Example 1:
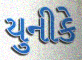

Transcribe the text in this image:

યુનીકે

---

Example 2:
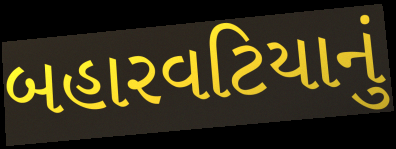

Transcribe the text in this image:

બહારવટિયાનું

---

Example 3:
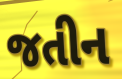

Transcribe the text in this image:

જતીન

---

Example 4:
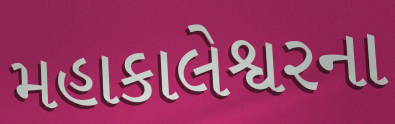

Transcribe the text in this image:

મહાકાલેશ્વરના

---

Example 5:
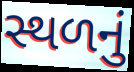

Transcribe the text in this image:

સ્થળનું